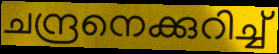
ചന്ദ്രനെക്കുറിച്ച്